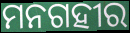
ମନଗହୀର